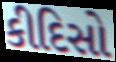
કીદિસો